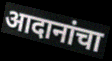
आदानांचा